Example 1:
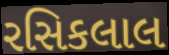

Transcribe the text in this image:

રસિકલાલ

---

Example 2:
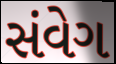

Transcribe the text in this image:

સંવેગ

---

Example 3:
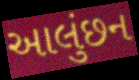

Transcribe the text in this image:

આલુંછન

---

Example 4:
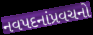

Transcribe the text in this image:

નવપદનાંપ્રવચનો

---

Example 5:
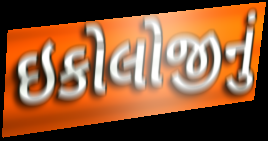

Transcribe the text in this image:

ઇકોલોજીનું